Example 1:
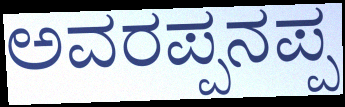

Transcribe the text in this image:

ಅವರಪ್ಪನಪ್ಪ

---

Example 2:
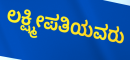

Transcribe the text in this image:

ಲಕ್ಷ್ಮೀಪತಿಯವರು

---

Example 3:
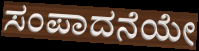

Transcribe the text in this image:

ಸಂಪಾದನೆಯೇ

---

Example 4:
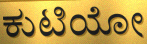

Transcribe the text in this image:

ಕುಟಿಯೋ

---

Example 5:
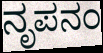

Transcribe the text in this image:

ನೃಪನಂ